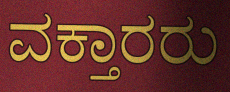
ವಕ್ತಾರರು